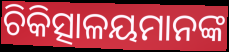
ଚିକିତ୍ସାଳୟମାନଙ୍କ